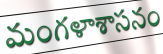
మంగళాశాసనం